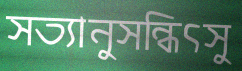
সত্যানুসন্ধিৎসু